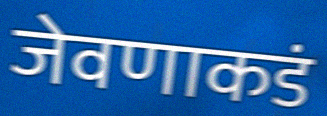
जेवणाकडं